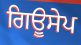
ਗਿਊਸੇਪ